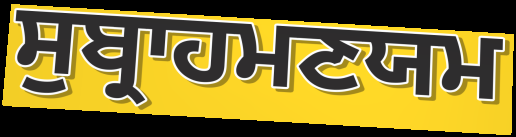
ਸੁਬ੍ਰਾਹਮਣਯਮ